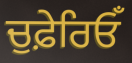
ਚੁਫ਼ੇਰਿਓਁ